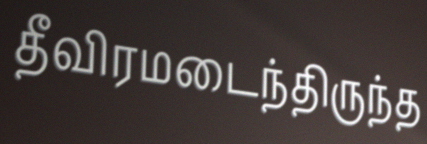
தீவிரமடைந்திருந்த